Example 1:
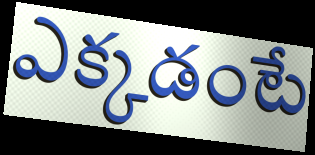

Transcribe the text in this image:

ఎక్కడంటే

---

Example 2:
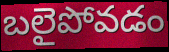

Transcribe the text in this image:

బలైపోవడం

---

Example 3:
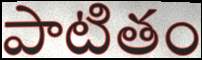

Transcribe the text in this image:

పాటితం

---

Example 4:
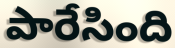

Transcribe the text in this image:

పారేసింది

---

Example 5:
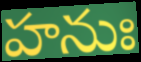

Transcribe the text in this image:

హనుః